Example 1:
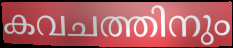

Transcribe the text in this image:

കവചത്തിനും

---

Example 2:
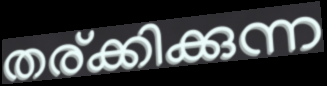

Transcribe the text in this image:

തര്ക്കിക്കുന്ന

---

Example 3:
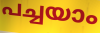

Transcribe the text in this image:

പച്ചയാം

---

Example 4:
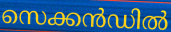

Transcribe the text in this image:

സെക്കൻഡിൽ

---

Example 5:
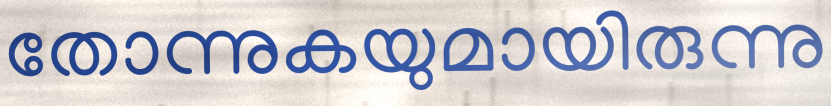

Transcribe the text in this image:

തോന്നുകയുമായിരുന്നു